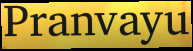
Pranvayu